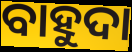
ବାହୁଦା